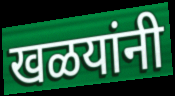
खळयांनी